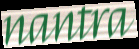
nantra